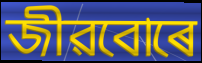
জীৱবোৰে